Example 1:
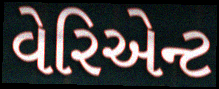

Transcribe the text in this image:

વેરિએન્ટ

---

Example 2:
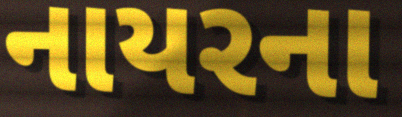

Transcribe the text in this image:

નાયરના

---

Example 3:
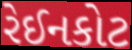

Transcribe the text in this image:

રેઈનકોટ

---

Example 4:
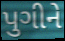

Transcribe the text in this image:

પુગીને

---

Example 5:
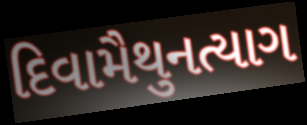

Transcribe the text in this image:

દિવામૈથુનત્યાગ